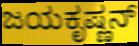
ಜಯಕೃಷ್ಣನ್